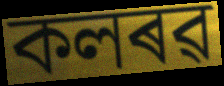
কলৰৱ